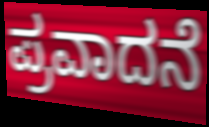
ಪ್ರವಾದನೆ